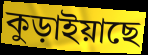
কুড়াইয়াছে